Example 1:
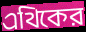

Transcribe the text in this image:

এথিকের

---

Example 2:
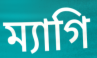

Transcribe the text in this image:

ম্যাগি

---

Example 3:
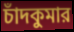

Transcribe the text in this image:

চাঁদকুমার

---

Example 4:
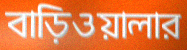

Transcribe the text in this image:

বাড়িওয়ালার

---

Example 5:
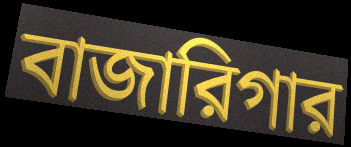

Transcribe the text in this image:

বাজারিগার